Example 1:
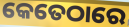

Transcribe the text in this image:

କେତେଠାରେ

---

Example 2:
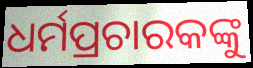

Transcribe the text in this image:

ଧର୍ମପ୍ରଚାରକଙ୍କୁ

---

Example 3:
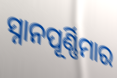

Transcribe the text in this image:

ସ୍ନାନପୂର୍ଣ୍ଣିମାର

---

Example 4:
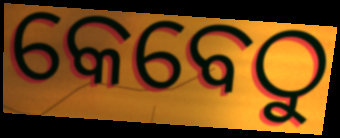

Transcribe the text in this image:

କେବେଠୁ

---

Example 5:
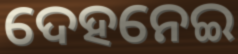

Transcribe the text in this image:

ଦେହନେଇ